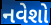
નવેશો